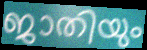
ജാതിയും